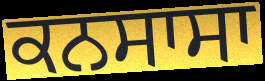
ਕਨਸਾਸਾ